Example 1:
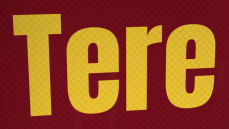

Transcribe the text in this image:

Tere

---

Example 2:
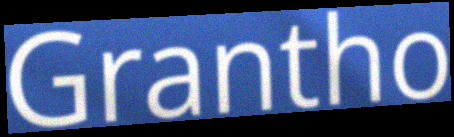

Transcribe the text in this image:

Grantho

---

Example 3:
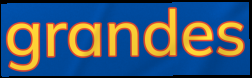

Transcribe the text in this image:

grandes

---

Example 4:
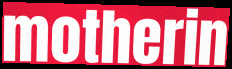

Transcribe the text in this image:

motherin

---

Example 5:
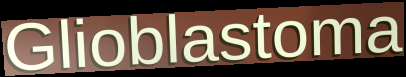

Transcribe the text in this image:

Glioblastoma